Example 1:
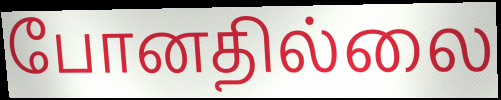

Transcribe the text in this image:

போனதில்லை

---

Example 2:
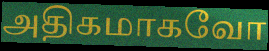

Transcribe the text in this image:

அதிகமாகவோ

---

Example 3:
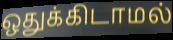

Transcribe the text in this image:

ஒதுக்கிடாமல்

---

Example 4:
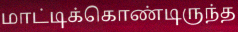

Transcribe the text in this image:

மாட்டிக்கொண்டிருந்த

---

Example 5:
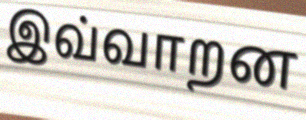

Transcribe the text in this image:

இவ்வாறன